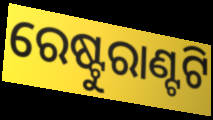
ରେଷ୍ଟୁରାଣ୍ଟଟି